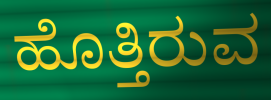
ಹೊತ್ತಿರುವ